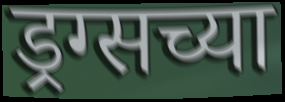
ड्रग्सच्या